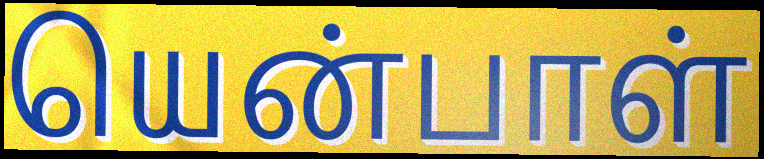
யென்பாள்